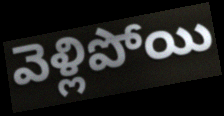
వెళ్లిపోయి